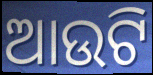
ଆଉଟି